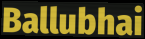
Ballubhai